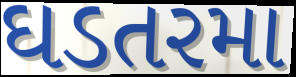
ઘડતરમા